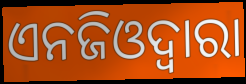
ଏନଜିଓଦ୍ୱାରା